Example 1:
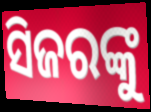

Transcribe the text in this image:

ସିଜରଙ୍କୁ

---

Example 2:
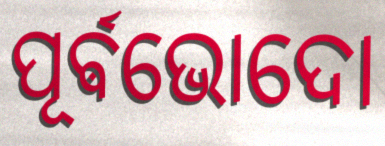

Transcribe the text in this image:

ପୂର୍ଵଭୋଦୋ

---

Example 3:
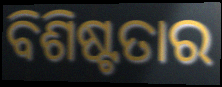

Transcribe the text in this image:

ବିଶିଷ୍ଟତାର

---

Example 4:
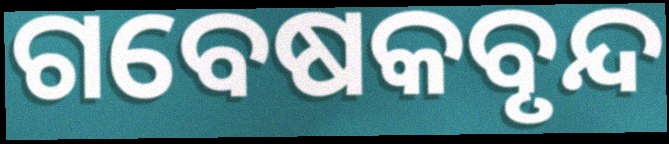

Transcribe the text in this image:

ଗବେଷକବୃନ୍ଦ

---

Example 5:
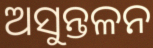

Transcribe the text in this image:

ଅସୁନ୍ତଳନ